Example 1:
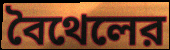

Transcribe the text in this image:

বৈথেলের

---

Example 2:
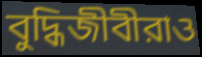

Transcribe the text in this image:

বুদ্ধিজীবীরাও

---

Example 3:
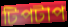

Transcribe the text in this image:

টিপটাপ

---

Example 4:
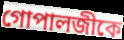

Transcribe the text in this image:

গোপালজীকে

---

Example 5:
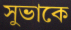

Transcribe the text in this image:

সুভাকে